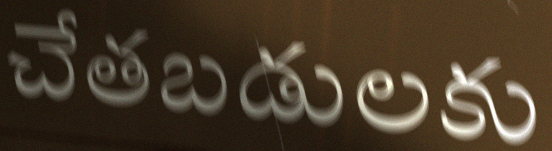
చేతబడులకు